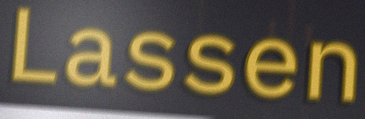
Lassen